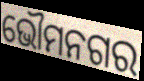
ଭୌମନଗର